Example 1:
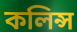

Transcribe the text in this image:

কলিন্স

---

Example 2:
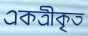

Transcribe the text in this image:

একত্রীকৃত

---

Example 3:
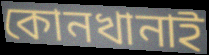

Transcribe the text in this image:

কোনখানাই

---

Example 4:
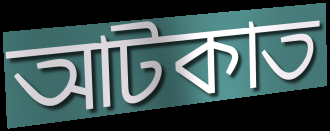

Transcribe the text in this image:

আটকাত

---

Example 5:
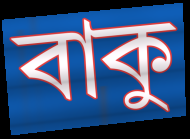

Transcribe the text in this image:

বাকু